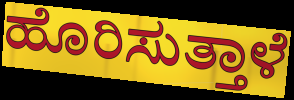
ಹೊರಿಸುತ್ತಾಳೆ